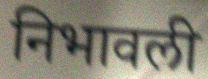
निभावली